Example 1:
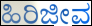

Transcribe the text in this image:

ಹಿರಿಜೀವ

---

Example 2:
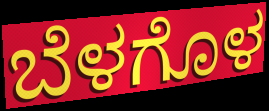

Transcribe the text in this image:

ಬೆಳಗೊಳ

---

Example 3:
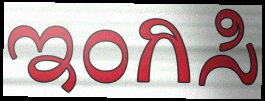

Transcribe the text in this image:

ಇಂಗಿಸಿ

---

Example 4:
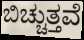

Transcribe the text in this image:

ಬಿಚ್ಚುತ್ತವೆ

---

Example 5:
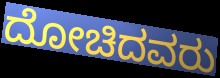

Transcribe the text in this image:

ದೋಚಿದವರು